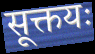
सूक्तयः